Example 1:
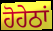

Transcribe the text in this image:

ਹੋਹੇਠਾਂ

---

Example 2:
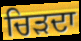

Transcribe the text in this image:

ਚਿੜਦਾ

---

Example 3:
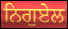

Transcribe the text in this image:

ਨਿਗੁਏਲ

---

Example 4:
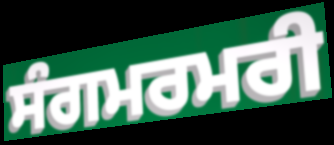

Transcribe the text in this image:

ਸੰਗਮਰਮਰੀ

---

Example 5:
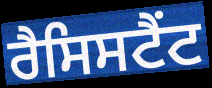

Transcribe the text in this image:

ਰੈਸਿਸਟੈਂਟ